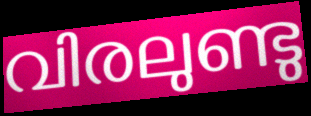
വിരലുണ്ടു